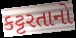
કટ્ટરતાનો